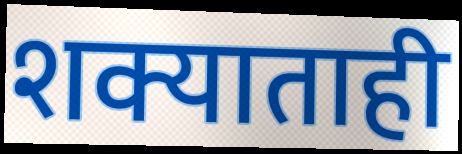
शक्याताही